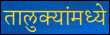
तालुक्यांमध्ये